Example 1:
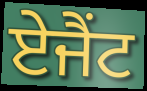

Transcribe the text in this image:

ਏਜੈਂਟ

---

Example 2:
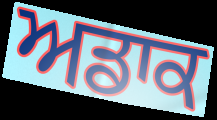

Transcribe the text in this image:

ਅਡਾਕ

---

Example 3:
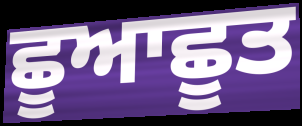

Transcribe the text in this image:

ਛੂਆਛੂਤ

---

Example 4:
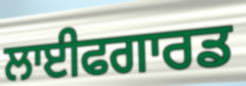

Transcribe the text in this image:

ਲਾਈਫਗਾਰਡ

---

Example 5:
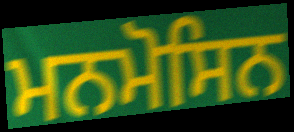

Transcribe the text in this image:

ਮਨਮੋਸਿਨ